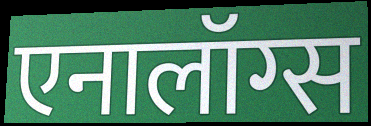
एनालॉग्स